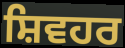
ਸ਼ਿਵਹਰ